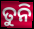
ତୁନି